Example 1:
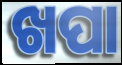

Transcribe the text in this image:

ଖପା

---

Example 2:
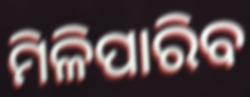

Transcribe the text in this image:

ମିଳିପାରିବ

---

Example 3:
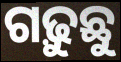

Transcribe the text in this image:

ଗଢ଼ୁଛୁ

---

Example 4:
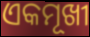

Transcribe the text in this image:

ଏକମୂଖୀ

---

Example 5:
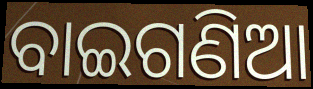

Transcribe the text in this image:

ବାଇଗଣିଆ